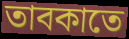
তাবকাতে